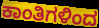
ಕಾಂತಿಗಳಿಂದ